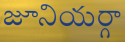
జూనియర్గా